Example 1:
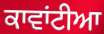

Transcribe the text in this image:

ਕਾਵਾਂਟੀਆ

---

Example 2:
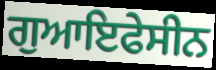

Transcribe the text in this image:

ਗੁਆਇਫੇਸੀਨ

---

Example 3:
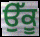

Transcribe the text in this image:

ਉੱਕੂ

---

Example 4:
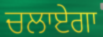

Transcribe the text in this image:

ਚਲਾਏਗਾ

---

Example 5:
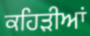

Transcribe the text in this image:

ਕਹਿੜੀਆਂ